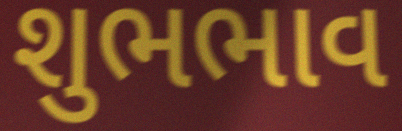
શુભભાવ